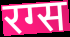
रग्स